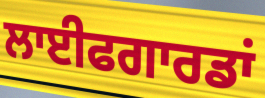
ਲਾਈਫਗਾਰਡਾਂ